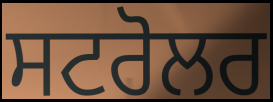
ਸਟਰੋਲਰ